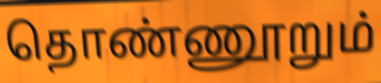
தொண்ணூறும்